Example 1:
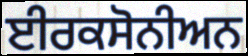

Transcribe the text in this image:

ਈਰਕਸੋਨੀਅਨ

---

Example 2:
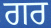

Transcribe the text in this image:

ਗਰ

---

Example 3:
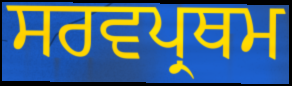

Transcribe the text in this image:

ਸਰਵਪ੍ਰਥਮ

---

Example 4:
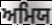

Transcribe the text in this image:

ਅਮਿਯ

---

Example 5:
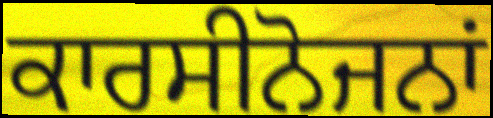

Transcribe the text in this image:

ਕਾਰਸੀਨੋਜਨਾਂ